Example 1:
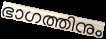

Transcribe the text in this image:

ഭാഗത്തിനും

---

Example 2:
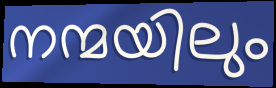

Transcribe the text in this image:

നന്മയിലും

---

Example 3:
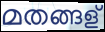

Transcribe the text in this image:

മതങ്ങള്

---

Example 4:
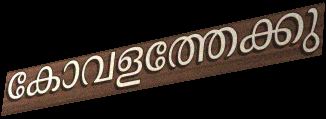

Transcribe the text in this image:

കോവളത്തേക്കു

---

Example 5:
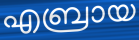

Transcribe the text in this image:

എബ്രായ